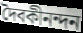
দৈবকীনন্দন